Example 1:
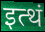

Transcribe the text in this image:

इत्थं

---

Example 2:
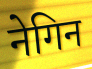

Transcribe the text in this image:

नेगिन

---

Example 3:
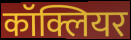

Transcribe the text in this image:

कॉक्लियर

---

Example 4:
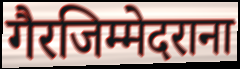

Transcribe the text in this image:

गैरजिम्मेदराना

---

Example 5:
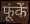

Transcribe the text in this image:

फूंकें